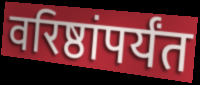
वरिष्ठांपर्यंत